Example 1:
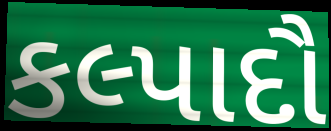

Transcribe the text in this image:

કલ્પાદૌ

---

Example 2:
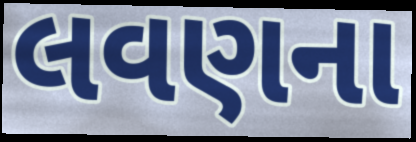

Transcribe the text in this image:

લવણના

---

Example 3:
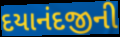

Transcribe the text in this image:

દયાનંદજીની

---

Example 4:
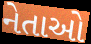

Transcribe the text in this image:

નેતાઓ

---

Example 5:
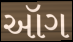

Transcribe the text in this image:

ઑગ